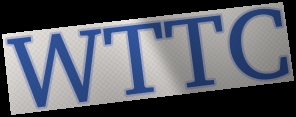
WTTC